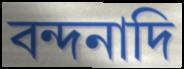
বন্দনাদি